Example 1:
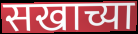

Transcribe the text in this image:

सखाच्या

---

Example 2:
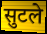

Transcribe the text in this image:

सुटले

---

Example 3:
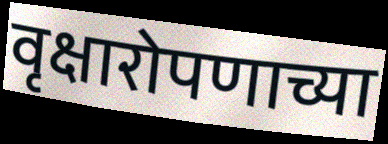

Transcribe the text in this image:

वृक्षारोपणाच्या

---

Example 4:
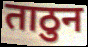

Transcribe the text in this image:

ताठुन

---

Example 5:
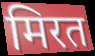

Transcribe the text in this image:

मिरत